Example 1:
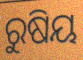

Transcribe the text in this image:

ରୁଷିୟ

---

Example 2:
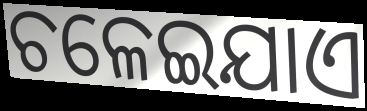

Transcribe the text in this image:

ଚଳେଇଯାଏ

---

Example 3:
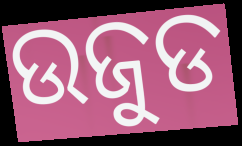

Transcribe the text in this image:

ଉଜୁଡ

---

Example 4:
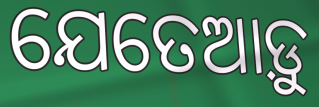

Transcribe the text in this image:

ଯେତେଆଡ଼ୁ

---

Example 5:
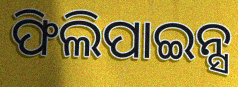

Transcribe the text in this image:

ଫିଲିପାଇନ୍ସ